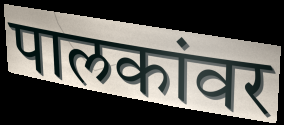
पालकांवर